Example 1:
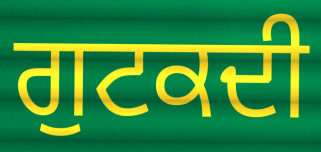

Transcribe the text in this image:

ਗੁਟਕਦੀ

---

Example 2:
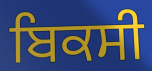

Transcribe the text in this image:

ਬਿਕਸੀ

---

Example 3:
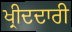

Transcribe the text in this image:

ਖ੍ਰੀਦਦਾਰੀ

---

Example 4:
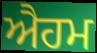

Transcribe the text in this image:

ਐਹਮ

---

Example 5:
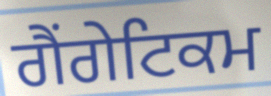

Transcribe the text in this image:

ਗੈਂਗੇਟਿਕਮ